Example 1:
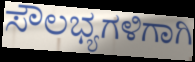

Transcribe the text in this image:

ಸೌಲಭ್ಯಗಳಿಗಾಗಿ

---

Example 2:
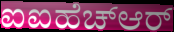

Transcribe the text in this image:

ಐಐಹೆಚ್ಆರ್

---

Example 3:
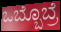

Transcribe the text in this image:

ಒಬ್ಬೊಬ್ರೆ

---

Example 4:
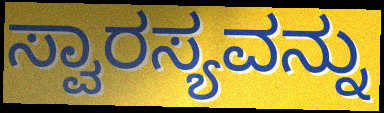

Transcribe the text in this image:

ಸ್ವಾರಸ್ಯವನ್ನು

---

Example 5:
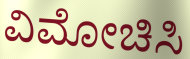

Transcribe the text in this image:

ವಿಮೋಚಿಸಿ